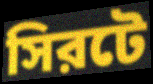
সিরটে